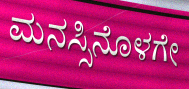
ಮನಸ್ಸಿನೊಳಗೇ